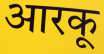
आरकू